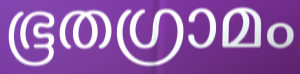
ഭൂതഗ്രാമം